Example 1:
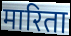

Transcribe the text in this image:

मारिता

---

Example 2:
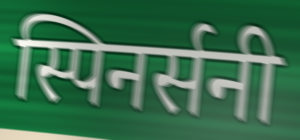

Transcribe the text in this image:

स्पिनर्सनी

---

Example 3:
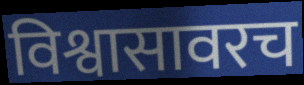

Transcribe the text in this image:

विश्वासावरच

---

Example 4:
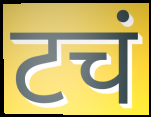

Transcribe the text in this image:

टचं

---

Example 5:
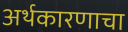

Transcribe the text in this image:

अर्थकारणाचा